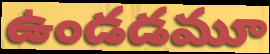
ఉండడమూ